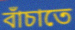
বাঁচাতে